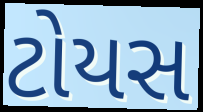
ટોયસ